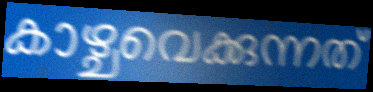
കാഴ്ചവെക്കുന്നത്